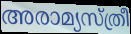
അരാമ്യസ്ത്രീ